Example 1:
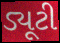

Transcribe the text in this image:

ડ્યૂટી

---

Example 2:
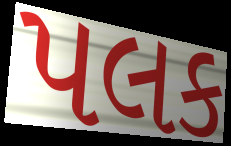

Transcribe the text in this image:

પલક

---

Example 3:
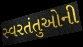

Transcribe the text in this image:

સ્વરતંતુઓની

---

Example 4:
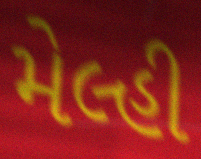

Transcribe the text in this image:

મેલ્હી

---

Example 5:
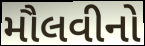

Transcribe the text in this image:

મૌલવીનો